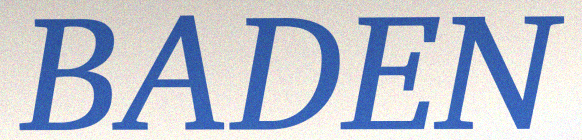
BADEN